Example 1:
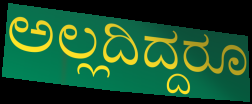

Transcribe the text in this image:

ಅಲ್ಲದಿದ್ದರೂ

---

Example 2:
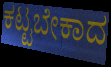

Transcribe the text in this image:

ಕಟ್ಟಬೇಕಾದ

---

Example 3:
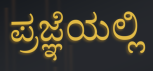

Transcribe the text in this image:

ಪ್ರಜ್ಞೆಯಲ್ಲಿ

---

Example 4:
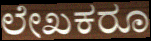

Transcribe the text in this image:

ಲೇಖಕರೂ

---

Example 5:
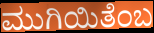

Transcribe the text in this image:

ಮುಗಿಯಿತೆಂಬ